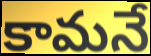
కామనే